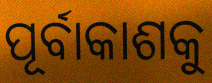
ପୂର୍ବାକାଶକୁ